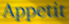
Appetit